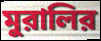
মুরালির